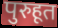
पुरुहूत